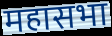
महासभा